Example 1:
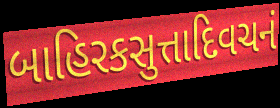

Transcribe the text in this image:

બાહિરકસુત્તાદિવચનં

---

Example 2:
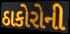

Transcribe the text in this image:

ઠાકોરોની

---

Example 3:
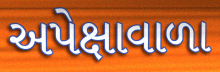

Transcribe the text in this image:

અપેક્ષાવાળા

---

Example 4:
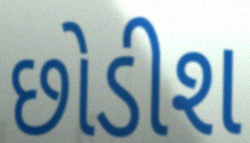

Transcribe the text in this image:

છોડીશ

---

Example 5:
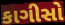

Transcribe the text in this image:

કાગીસો